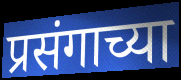
प्रसंगाच्या